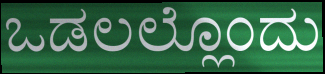
ಒಡಲಲ್ಲೊಂದು